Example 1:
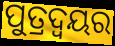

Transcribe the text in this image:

ପୁତ୍ରଦ୍ୱୟର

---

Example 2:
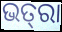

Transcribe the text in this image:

ଭତ୍‌ରା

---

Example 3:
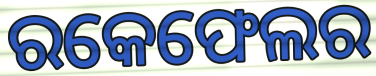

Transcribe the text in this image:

ରକେଫେଲର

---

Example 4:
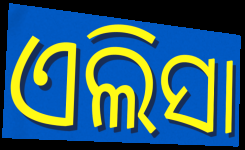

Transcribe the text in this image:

ଏଲିସା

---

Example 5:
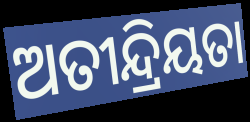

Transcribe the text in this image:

ଅତୀନ୍ଦ୍ରିୟତା